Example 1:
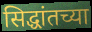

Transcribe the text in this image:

सिद्धांतच्या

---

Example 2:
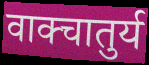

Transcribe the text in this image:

वाक्चातुर्य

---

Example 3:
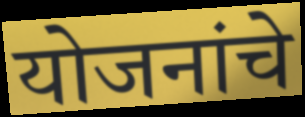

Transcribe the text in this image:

योजनांचे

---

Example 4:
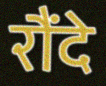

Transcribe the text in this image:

रौंदे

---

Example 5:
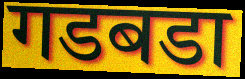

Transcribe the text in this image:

गडबडा